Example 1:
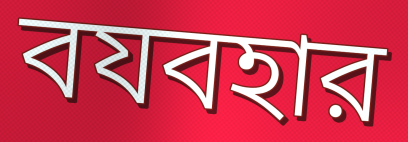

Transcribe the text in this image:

বযবহার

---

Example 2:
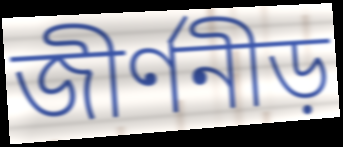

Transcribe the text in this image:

জীর্ণনীড়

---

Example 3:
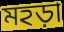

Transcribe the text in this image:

মহড়া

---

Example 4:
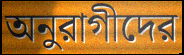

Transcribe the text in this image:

অনুরাগীদের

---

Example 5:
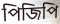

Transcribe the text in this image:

পিজিপি